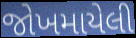
જોખમાયેલી